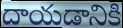
దాయడానికి